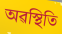
অৱস্থিতি